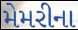
મેમરીના